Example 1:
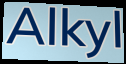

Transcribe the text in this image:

Alkyl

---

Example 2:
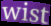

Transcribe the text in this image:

wist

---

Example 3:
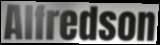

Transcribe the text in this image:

Alfredson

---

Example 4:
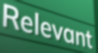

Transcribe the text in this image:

Relevant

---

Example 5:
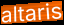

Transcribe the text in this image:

altaris